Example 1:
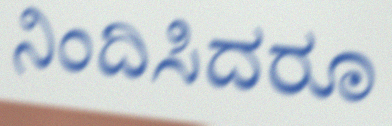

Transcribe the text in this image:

ನಿಂದಿಸಿದರೂ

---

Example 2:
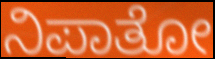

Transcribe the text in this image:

ನಿಪಾತೋ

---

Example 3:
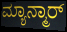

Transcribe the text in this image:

ಮ್ಯಾನ್ಮಾರ್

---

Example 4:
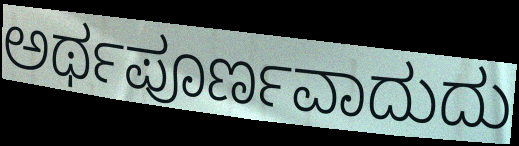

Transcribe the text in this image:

ಅರ್ಥಪೂರ್ಣವಾದುದು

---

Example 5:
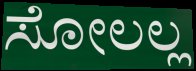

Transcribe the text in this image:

ಸೋಲಲ್ಲ